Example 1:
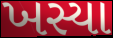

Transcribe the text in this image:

ખસ્યા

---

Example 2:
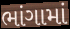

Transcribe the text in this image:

ભાંગામાં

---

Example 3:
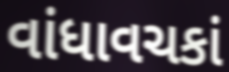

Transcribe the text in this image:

વાંધાવચકાં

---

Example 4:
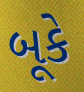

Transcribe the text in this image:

બૂકે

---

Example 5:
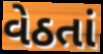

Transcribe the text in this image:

વેઠતાં